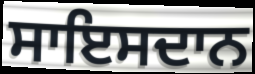
ਸਾਇਸਦਾਨ